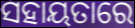
ସହାୟତାରେ